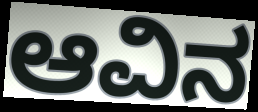
ಆವಿನ